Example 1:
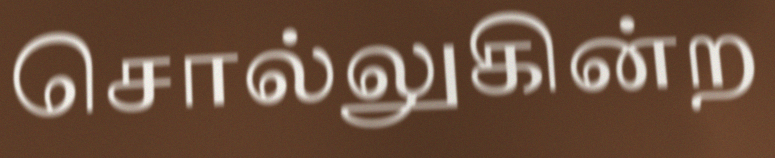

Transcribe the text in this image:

சொல்லுகின்ற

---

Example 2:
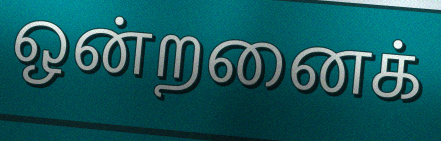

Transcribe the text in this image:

ஒன்றனைக்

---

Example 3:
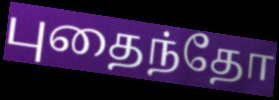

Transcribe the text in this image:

புதைந்தோ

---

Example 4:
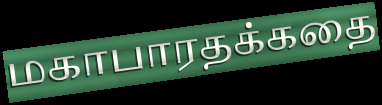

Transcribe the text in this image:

மகாபாரதக்கதை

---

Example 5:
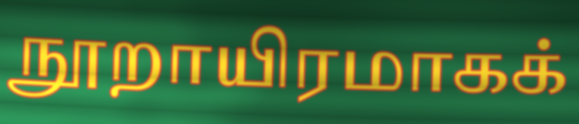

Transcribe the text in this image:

நூறாயிரமாகக்